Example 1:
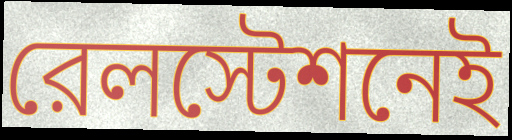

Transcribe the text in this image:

রেলস্টেশনেই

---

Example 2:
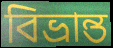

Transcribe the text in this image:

বিভ্রান্ত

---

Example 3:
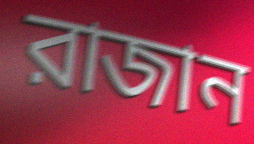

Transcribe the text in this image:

রাজান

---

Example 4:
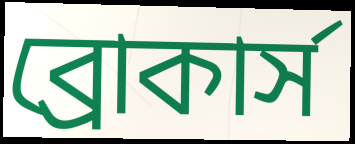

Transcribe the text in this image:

ব্রোকার্স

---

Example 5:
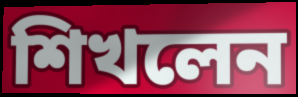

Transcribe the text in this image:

শিখলেন